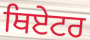
ਥਿਏਟਰ